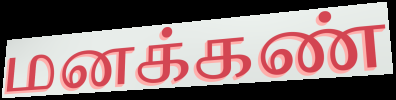
மனக்கண்